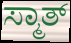
ಸ್ಮಾತ್